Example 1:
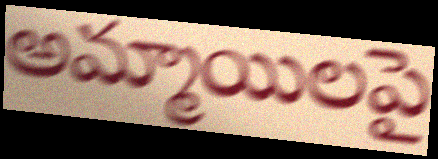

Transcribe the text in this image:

అమ్మాయిలపై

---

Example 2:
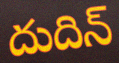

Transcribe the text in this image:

దుదిన్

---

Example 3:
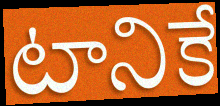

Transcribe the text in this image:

టానికే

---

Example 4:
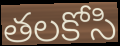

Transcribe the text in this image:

తలకోసి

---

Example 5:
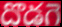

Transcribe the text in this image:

దొడగె